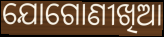
ଯୋଗୋଣୀଖିଆ